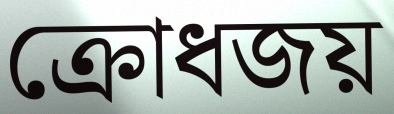
ক্রোধজয়